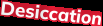
Desiccation